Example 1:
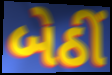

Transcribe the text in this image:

બેઠીં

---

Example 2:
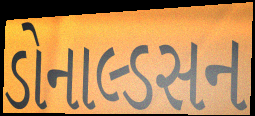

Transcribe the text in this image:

ડોનાલ્ડસન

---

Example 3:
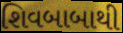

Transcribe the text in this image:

શિવબાબાથી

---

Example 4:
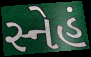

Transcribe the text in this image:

સ્નેહં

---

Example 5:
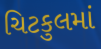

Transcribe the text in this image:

ચિટકુલમાં